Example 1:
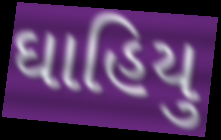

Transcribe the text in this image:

ઘાહિયુ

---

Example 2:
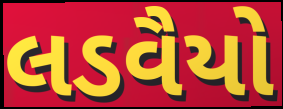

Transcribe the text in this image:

લડવૈયો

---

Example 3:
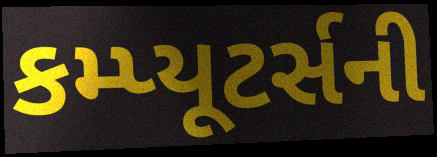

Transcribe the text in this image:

કમ્પ્યૂટર્સની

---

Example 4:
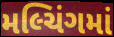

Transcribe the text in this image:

મલ્ચિંગમાં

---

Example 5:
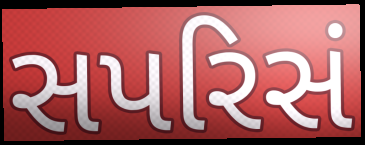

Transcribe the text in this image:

સપરિસં